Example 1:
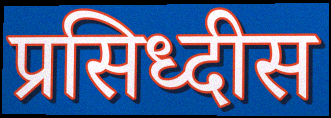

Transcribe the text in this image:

प्रसिध्दीस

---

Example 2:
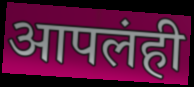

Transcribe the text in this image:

आपलंही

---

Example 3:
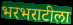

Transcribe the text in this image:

भरभराटीला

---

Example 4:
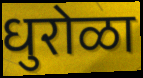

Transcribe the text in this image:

धुरोळा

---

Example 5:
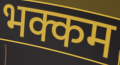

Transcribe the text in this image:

भक्‍कम